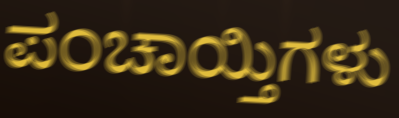
ಪಂಚಾಯ್ತಿಗಳು